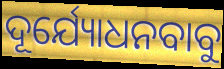
ଦୂର୍ଯ୍ୟୋଧନବାବୁ